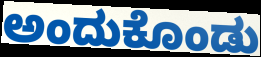
ಅಂದುಕೊಂಡು